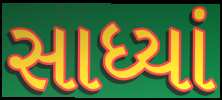
સાધ્યાં